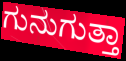
ಗುನುಗುತ್ತಾ